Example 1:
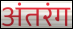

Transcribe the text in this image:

अंतरंग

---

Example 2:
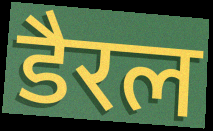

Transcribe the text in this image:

डैरल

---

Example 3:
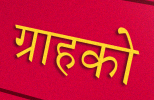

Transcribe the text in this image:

ग्राहको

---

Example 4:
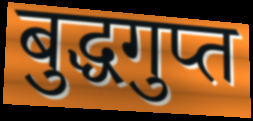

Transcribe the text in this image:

बुद्धगुप्त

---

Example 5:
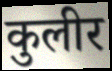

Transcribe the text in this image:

कुलीर